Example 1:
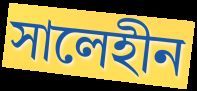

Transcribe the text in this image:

সালেহীন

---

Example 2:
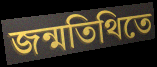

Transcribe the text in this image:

জন্মতিথিতে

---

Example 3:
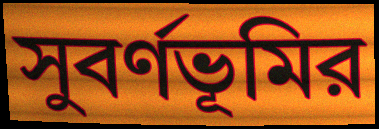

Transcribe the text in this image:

সুবর্ণভূমির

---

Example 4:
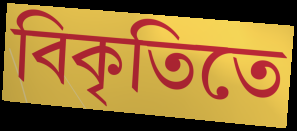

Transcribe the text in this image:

বিকৃতিতে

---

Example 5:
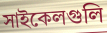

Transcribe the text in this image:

সাইকেলগুলি